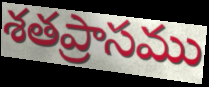
శతప్రాసము